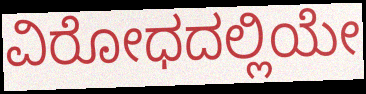
ವಿರೋಧದಲ್ಲಿಯೇ